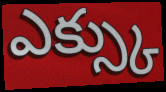
ఎక్స్కు